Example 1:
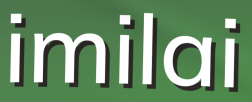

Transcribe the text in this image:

imilai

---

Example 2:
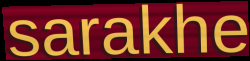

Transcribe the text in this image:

sarakhe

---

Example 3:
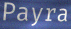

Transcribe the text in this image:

Payra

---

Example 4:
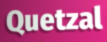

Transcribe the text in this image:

Quetzal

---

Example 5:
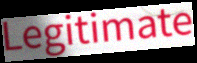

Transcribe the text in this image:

Legitimate